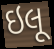
ઇલૂ